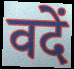
वदें